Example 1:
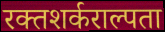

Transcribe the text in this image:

रक्तशर्कराल्पता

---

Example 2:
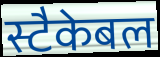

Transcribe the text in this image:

स्टैकेबल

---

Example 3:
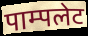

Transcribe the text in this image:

पाम्पलेट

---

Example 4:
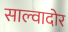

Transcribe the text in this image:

साल्वादोर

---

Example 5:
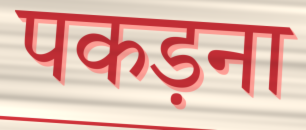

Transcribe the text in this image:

पकड़ना